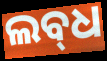
ଲବ୍‌ଧ